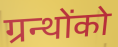
ग्रन्थोंको